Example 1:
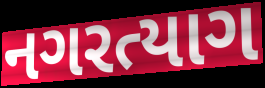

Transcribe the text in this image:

નગરત્યાગ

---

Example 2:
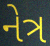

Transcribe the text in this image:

નેત્ર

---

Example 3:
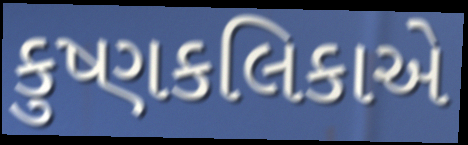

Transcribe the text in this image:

કુષ્ણકલિકાએ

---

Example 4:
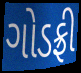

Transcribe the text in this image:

ગોડફ્રી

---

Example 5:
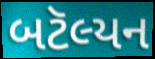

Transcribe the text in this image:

બટૅલ્યન